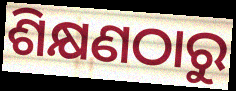
ଶିକ୍ଷଣଠାରୁ